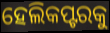
ହେଲିକପ୍ଟରକୁ